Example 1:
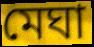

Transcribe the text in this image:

মেঘা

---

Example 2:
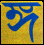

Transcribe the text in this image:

ঙ্গ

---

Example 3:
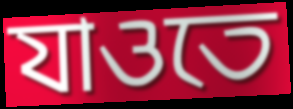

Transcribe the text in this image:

যাওতে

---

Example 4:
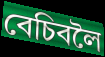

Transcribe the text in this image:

বেচিবলৈ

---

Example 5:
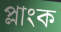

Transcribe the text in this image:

প্লাংক